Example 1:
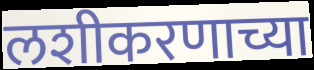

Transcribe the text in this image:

लशीकरणाच्या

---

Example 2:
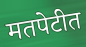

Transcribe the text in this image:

मतपेटीत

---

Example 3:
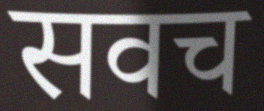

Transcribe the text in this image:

सवच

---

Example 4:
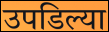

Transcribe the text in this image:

उपडिल्या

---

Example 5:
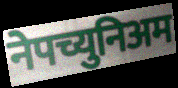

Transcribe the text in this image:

नेपच्युनिअम